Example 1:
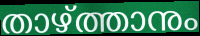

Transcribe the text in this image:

താഴ്ത്താനും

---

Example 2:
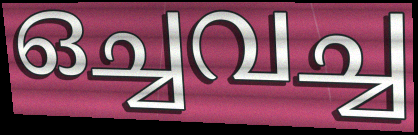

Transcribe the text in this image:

ഒച്ചവച്ച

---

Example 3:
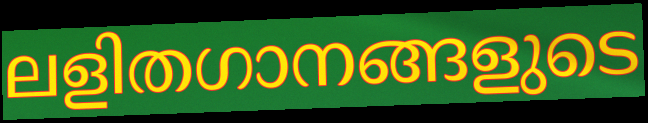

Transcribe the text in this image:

ലളിതഗാനങ്ങളുടെ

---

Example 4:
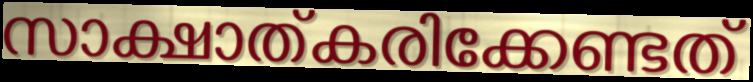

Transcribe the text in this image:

സാക്ഷാത്കരിക്കേണ്ടത്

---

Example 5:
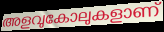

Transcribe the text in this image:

അളവുകോലുകളാണ്